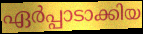
ഏർപ്പാടാക്കിയ